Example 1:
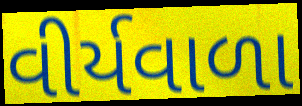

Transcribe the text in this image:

વીર્યવાળા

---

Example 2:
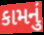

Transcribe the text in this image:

કામનું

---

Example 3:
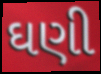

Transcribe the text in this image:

ઘણી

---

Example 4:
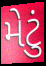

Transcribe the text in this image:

મેટું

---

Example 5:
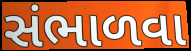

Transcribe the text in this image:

સંભાળવા